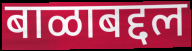
बाळाबद्दल